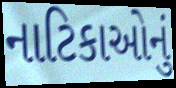
નાટિકાઓનું